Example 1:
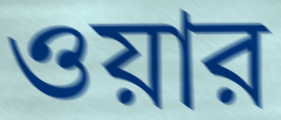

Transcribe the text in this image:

ওয়ার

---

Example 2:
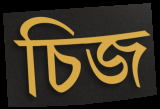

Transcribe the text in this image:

চিজ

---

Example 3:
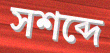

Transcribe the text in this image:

সশব্দে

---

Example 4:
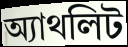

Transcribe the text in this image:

অ্যাথলিট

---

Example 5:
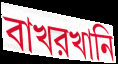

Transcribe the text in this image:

বাখরখানি